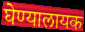
घेण्यालायक